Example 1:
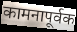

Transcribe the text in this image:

कामनापूर्वक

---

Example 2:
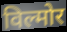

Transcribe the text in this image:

विल्मोर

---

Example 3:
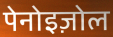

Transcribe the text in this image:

पेनोइज़ोल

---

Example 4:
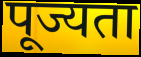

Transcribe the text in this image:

पूज्यता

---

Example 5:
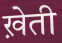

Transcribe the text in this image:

ख़ेती